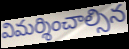
విమర్శించాల్సిన